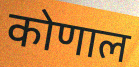
कोणाल